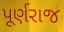
પૂર્ણરાજ